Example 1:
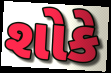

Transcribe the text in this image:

શોકે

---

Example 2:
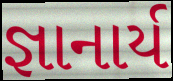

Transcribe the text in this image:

જ્ઞાનાર્ય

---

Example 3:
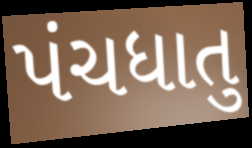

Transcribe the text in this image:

પંચધાતુ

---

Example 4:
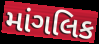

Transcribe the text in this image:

માંગલિક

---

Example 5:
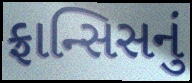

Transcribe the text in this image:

ફ્રાન્સિસનું